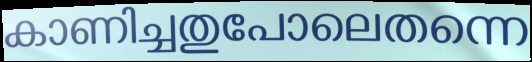
കാണിച്ചതുപോലെതന്നെ